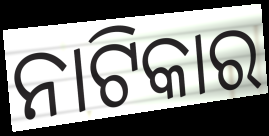
ନାଟିକାର